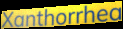
Xanthorrhea